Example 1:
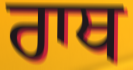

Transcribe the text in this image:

ਰਾਥ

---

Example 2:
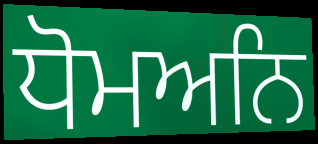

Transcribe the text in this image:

ਧੋਮਅਨਿ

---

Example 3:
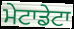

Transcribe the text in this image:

ਮੇਟਾਡੇਟਾ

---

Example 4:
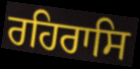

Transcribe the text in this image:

ਰਹਿਰਾਸਿ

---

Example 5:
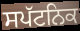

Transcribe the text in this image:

ਸਪੱਟਨਿਕ